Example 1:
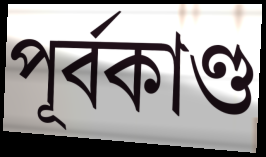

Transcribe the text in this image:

পূর্বকাণ্ড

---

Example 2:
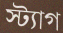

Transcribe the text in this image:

স্ট্যাগ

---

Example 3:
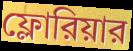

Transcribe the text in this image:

ফ্লোরিয়ার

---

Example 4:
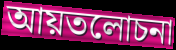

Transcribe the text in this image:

আয়তলোচনা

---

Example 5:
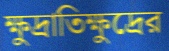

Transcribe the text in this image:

ক্ষুদ্রাতিক্ষুদ্রের